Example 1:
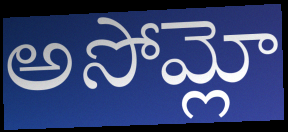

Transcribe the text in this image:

అసోమ్లో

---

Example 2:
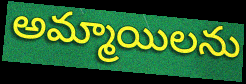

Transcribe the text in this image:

అమ్మాయిలను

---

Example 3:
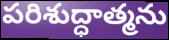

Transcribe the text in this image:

పరిశుద్ధాత్మను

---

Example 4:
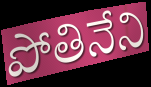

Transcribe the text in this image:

పోతినేని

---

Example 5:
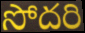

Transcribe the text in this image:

సోదరి